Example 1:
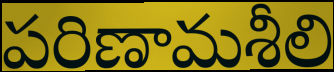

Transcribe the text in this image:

పరిణామశీలి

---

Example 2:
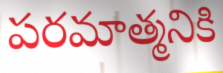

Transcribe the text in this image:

పరమాత్మనికి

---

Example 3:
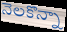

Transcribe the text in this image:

నెలకొన్నా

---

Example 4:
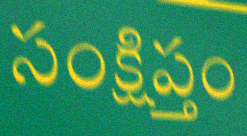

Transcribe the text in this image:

సంక్షిప్తం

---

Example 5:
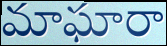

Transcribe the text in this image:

మాఘారా